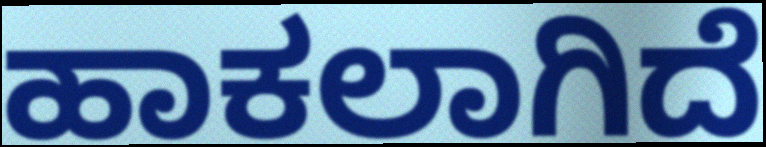
ಹಾಕಲಾಗಿದೆ